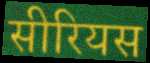
सीरियस